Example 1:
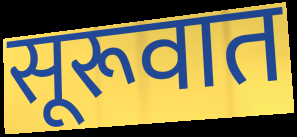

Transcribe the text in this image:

सूरूवात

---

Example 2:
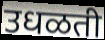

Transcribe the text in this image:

उधळती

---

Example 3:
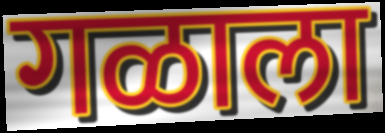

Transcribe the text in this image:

गळाला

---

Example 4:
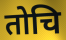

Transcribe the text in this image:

तोचि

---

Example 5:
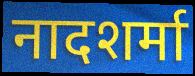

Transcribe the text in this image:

नादशर्मा